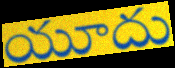
యూదు